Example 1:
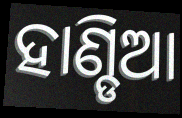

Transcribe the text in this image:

ହାଣ୍ଡିଆ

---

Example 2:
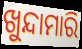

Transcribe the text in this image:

ଖୁନ୍ଦାମାରି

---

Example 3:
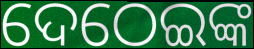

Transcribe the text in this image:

ଦେଠେଇଙ୍କ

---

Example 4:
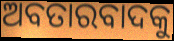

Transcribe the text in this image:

ଅବତାରବାଦକୁ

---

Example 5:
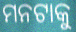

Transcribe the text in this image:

ମନଟାକୁ